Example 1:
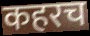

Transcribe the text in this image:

कहरच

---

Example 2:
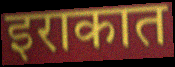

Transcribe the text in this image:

इराकात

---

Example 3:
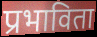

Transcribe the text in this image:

प्रभाविता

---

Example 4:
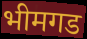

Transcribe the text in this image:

भीमगड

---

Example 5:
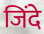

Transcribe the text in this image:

जिंदे